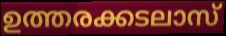
ഉത്തരക്കടലാസ്